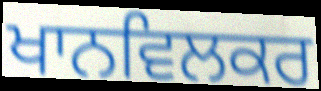
ਖਾਨਵਿਲਕਰ